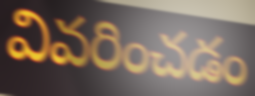
వివరించడం